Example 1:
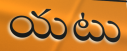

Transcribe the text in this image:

యటు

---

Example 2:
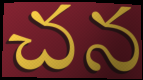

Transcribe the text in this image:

చన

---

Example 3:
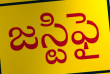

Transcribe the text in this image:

జస్టిఫై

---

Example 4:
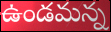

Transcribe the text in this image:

ఉండమన్న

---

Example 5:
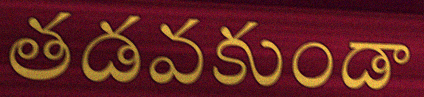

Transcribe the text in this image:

తడవకుండా